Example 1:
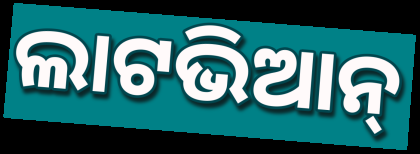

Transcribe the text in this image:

ଲାଟଭିଆନ୍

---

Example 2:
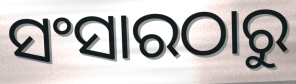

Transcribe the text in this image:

ସଂସାରଠାରୁ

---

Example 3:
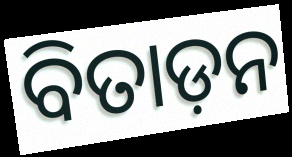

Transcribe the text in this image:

ବିତାଡ଼ନ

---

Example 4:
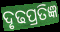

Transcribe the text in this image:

ଦୃଢପ୍ରତିଜ୍ଞ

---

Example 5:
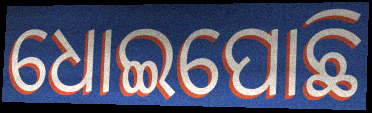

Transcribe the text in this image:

ଧୋଇପୋଛି